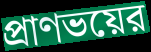
প্রাণভয়ের